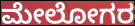
ಮೇಲೋಗರ